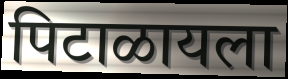
पिटाळायला